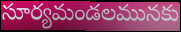
సూర్యమండలమునకు